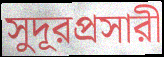
সুদূরপ্রসারী